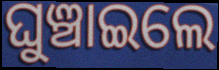
ଘୁଞ୍ଚାଇଲେ